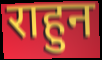
राहुन